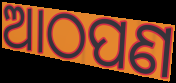
ଆଠପଣ